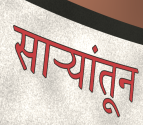
साऱ्यांतून